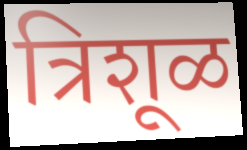
त्रिशूळ